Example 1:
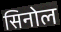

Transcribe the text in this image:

सिनोल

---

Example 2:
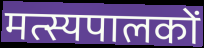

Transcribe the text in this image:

मत्स्यपालकों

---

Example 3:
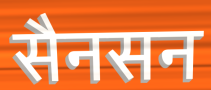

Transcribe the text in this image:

सैनसन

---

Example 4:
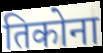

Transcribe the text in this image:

तिकोना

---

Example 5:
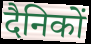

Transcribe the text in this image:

दैनिकों